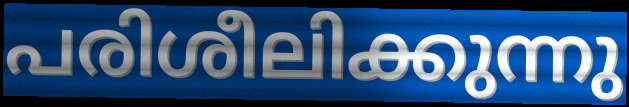
പരിശീലിക്കുന്നു